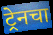
ट्रेनचा